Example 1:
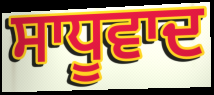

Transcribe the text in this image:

ਸਾਧੂਵਾਦ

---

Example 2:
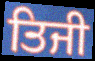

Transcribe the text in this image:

ਤਿਜੀ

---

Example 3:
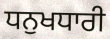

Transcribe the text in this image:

ਧਨੁਖਧਾਰੀ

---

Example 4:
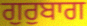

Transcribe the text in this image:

ਗੁਰੁਬਾਗ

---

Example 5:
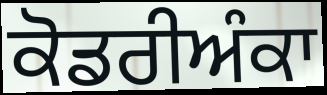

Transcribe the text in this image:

ਕੋਡਰੀਅੰਕਾ